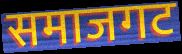
समाजगट